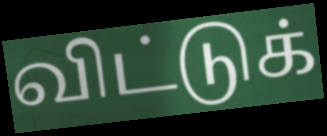
விட்டுக்